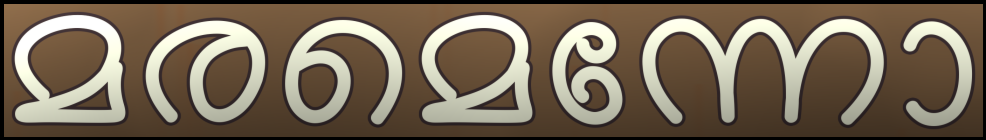
മരമെന്നോ